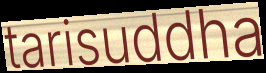
tarisuddha